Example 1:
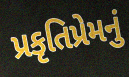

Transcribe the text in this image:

પ્રકૃતિપ્રેમનું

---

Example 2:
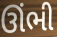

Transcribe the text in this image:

ઊંભી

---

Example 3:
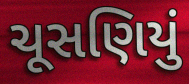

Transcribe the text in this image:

ચૂસણિયું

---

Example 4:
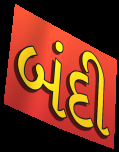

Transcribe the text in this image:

બંદી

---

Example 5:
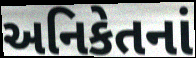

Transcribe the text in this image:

અનિકેતનાં